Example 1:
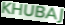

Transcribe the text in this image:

KHUBAJ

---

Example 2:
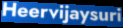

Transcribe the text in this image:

Heervijaysuri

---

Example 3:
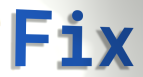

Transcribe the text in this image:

Fix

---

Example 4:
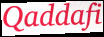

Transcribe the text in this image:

Qaddafi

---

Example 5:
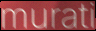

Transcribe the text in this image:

murati